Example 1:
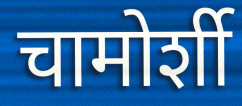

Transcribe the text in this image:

चामोर्शी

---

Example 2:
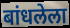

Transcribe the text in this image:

बांधलेला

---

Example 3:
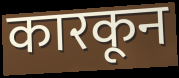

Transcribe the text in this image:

कारकून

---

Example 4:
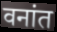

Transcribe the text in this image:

वनांत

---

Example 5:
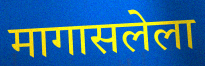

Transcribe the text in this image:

मागासलेला